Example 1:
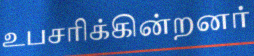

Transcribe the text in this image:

உபசரிக்கின்றனர்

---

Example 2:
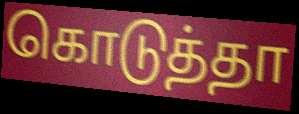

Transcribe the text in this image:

கொடுத்தா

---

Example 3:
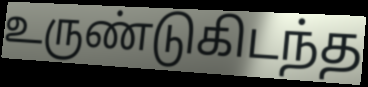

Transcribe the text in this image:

உருண்டுகிடந்த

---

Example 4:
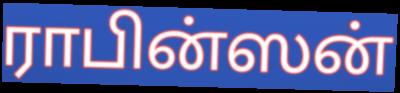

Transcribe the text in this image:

ராபின்ஸன்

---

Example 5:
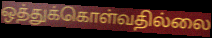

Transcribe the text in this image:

ஒத்துக்கொள்வதில்லை